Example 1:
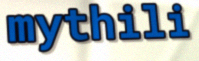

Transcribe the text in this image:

mythili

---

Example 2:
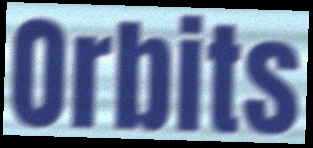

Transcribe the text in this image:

Orbits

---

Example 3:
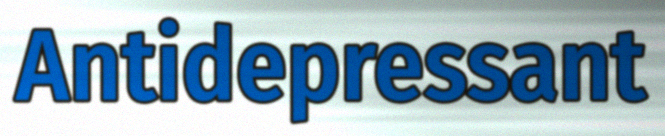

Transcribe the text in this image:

Antidepressant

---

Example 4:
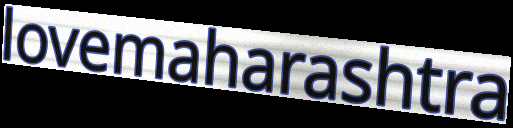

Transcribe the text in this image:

lovemaharashtra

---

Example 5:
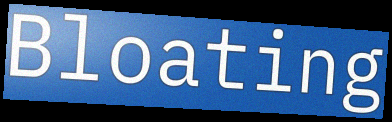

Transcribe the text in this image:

Bloating